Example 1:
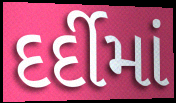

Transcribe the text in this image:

દર્દીમાં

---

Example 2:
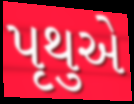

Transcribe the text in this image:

પૃથુએ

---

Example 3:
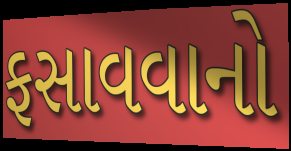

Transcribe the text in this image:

ફસાવવાનો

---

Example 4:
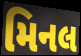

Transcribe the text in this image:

મિનલ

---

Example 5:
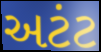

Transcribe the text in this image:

અટંટ